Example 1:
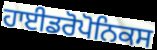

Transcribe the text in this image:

ਹਾਈਡਰੋਪੋਨਿਕਸ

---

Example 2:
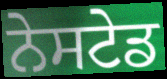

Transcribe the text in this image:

ਨੇਸਟੇਡ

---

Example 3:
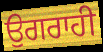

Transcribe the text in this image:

ਉਗਰਾਹੀ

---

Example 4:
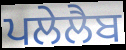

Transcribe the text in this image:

ਪਲੇਲੈਬ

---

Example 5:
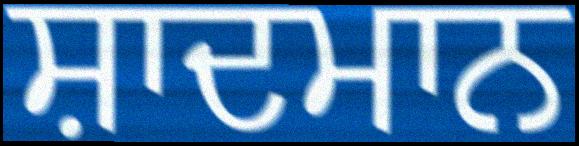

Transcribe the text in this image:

ਸ਼ਾਦਮਾਨ